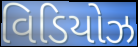
વિડિયોઝ